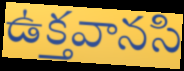
ఉక్తవానసి